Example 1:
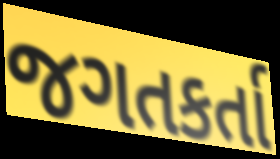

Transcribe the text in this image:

જગતકર્તા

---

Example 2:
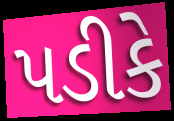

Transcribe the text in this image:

પડીકે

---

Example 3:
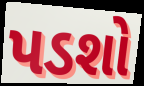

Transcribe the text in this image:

પડશો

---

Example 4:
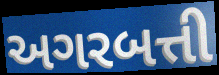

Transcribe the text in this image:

અગરબત્તી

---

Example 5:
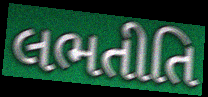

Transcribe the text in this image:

લભતીતિ